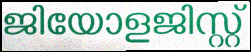
ജിയോളജിസ്റ്റ്